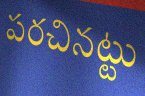
పరచినట్టు